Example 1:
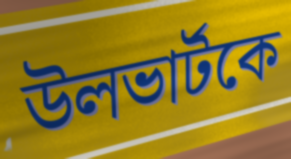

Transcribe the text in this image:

উলভার্টকে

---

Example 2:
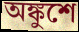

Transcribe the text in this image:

অঙ্কুশে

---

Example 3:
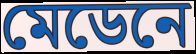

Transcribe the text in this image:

মেডেনে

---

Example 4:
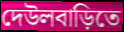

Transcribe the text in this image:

দেউলবাড়িতে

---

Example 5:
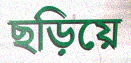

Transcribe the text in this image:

ছড়িয়ে